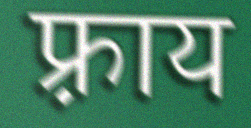
फ़्राय